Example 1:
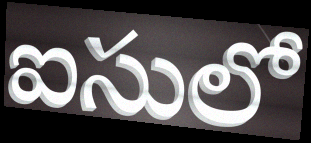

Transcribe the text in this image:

ఐసులో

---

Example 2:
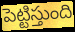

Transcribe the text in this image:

పెట్టిస్తుంది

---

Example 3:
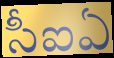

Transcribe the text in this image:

సీఐఏ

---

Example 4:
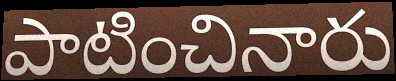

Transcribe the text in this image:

పాటించినారు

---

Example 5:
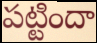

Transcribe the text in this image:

పట్టిందా